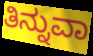
ತಿನ್ನುವಾ